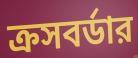
ক্রসবর্ডার